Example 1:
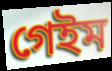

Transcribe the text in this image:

গেইম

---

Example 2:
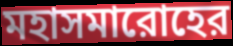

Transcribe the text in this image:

মহাসমারোহের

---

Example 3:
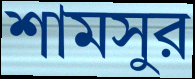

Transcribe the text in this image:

শামসুর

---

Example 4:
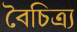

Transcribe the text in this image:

বৈচিত্র্য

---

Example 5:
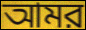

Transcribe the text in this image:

আমর